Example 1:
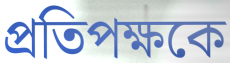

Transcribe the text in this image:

প্রতিপক্ষকে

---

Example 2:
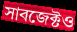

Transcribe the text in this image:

সাবজেক্টও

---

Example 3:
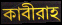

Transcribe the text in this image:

কাবীরাহ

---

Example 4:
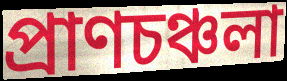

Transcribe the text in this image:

প্রাণচঞ্চলা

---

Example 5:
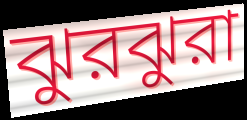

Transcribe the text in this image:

ঝুরঝুরা